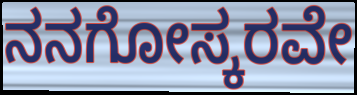
ನನಗೋಸ್ಕರವೇ